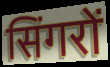
सिंगरों